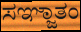
ಸಞ್ಜಾತಂ